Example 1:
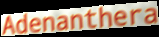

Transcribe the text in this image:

Adenanthera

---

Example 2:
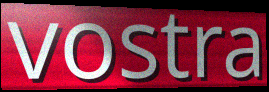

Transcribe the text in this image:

vostra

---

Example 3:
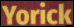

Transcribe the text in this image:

Yorick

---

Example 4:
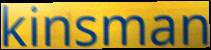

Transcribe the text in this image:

kinsman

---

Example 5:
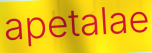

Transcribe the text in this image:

apetalae